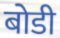
बोडी